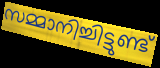
സമ്മാനിച്ചിട്ടുണ്ട്